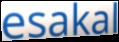
esakal